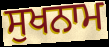
ਸੁਖਨਾਮ